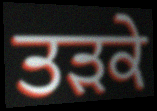
ਤੜਕੇ